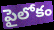
పైలోకం